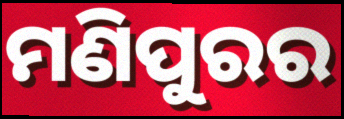
ମଣିପୁରର